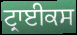
ਟ੍ਰਾਈਕਸ